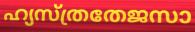
ഹ്യസ്ത്രതേജസാ